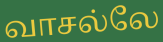
வாசல்லே